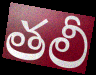
తలీ